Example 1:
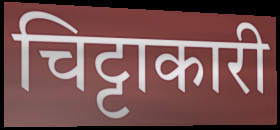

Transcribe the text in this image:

चिट्टाकारी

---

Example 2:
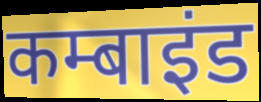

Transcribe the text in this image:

कम्बाइंड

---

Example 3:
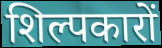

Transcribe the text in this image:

शिल्पकारों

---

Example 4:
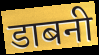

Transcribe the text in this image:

डाबनी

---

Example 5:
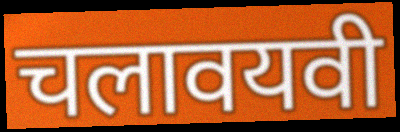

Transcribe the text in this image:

चलावयवी